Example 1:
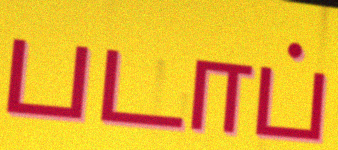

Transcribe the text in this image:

படாப்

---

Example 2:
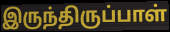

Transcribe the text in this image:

இருந்திருப்பாள்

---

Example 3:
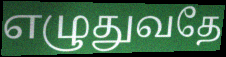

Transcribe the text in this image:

எழுதுவதே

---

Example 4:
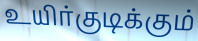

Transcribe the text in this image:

உயிர்குடிக்கும்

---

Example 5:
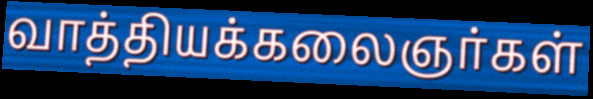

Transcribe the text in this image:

வாத்தியக்கலைஞர்கள்